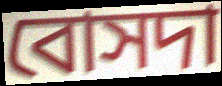
বোসদা